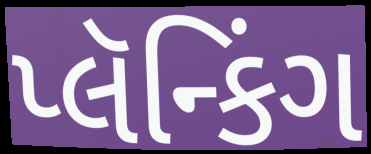
પ્લૅન્કિંગ